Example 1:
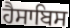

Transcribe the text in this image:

ਹੈਸਾਬਿਸ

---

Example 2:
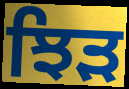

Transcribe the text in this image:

ਝਿੜ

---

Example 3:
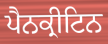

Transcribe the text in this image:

ਪੈਨਕ੍ਰੀਟਿਨ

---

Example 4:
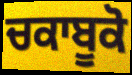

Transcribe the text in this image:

ਚਕਾਬੂਕੋ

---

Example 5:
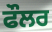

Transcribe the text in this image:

ਫੌਲਰ